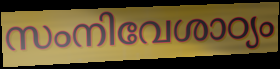
സംനിവേശാഠ്യം